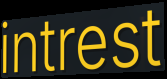
intrest